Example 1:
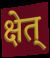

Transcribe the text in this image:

क्षेत्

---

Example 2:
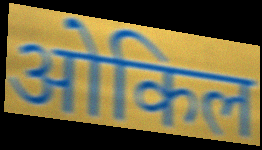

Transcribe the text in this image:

ओकिल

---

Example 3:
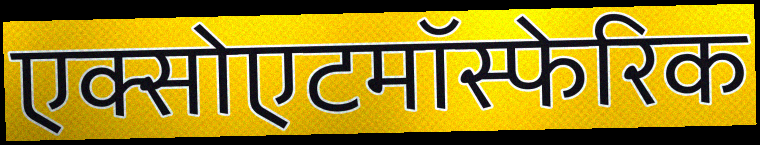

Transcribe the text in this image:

एक्सोएटमॉस्फेरिक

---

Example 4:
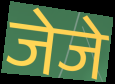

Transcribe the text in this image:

जेजे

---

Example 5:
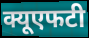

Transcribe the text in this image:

क्यूएफटी